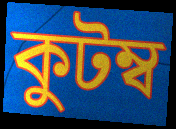
কুটম্ব